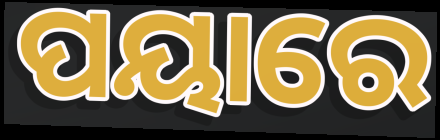
ପୟାରେ